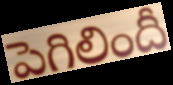
పెగిలిందీ